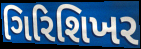
ગિરિશિખર